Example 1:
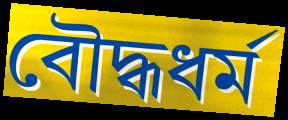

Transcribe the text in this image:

বৌদ্ধধৰ্ম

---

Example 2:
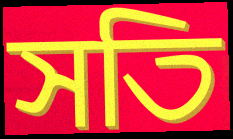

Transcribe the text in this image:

সতি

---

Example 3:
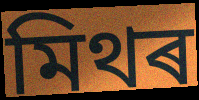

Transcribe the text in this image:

মিথৰ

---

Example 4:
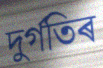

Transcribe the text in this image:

দুৰ্গতিৰ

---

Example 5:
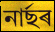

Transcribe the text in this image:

নাৰ্ছৰ